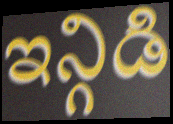
ఇన్గిడి